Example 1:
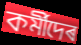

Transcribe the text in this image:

কৰ্মীদেৰ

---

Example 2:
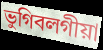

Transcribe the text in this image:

ভুগিবলগীয়া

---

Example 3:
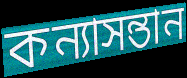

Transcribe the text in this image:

কন্যাসন্তান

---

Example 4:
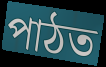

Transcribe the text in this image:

পাঠত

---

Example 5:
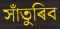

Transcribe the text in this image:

সাঁতুৰিব